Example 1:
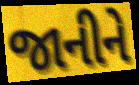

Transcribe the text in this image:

જાનીને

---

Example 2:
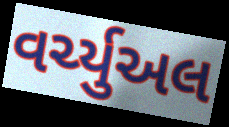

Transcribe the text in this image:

વર્ચ્યુઅલ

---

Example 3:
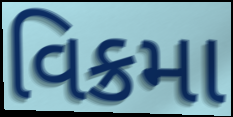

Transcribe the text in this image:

વિક્રમા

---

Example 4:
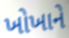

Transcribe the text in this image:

ખોખાને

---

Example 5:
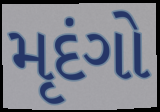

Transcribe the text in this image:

મૃદંગો